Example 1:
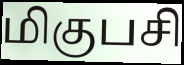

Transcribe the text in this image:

மிகுபசி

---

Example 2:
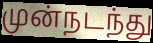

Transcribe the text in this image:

முன்நடந்து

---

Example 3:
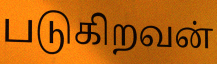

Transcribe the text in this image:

படுகிறவன்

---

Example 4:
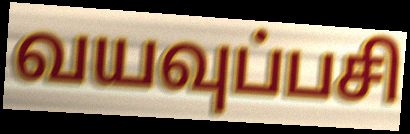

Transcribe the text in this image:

வயவுப்பசி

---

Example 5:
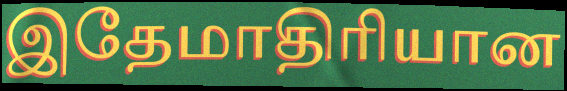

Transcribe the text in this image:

இதேமாதிரியான